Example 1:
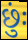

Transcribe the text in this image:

છુંઃ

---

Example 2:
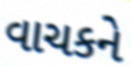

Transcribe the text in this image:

વાચકને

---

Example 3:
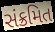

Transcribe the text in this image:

સંક્રમિત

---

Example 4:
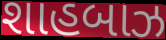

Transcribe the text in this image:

શાહબાઝ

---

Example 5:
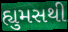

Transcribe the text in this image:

હ્યુમસથી